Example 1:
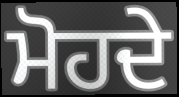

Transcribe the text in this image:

ਮੋਹਦੇ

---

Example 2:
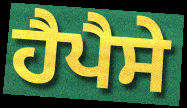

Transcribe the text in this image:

ਹੈਪੈਸੇ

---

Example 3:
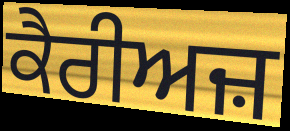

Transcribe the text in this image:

ਕੈਰੀਅਜ਼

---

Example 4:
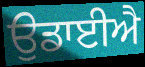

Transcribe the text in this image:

ਉਡਾਈਐ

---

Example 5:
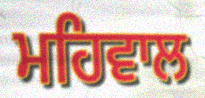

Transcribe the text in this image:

ਮਹਿਵਾਲ